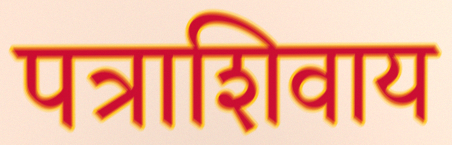
पत्राशिवाय